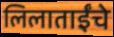
लिलाताईंचे